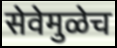
सेवेमुळेच